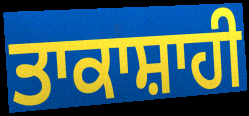
ਤਾਕਾਸ਼ਾਹੀ